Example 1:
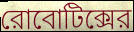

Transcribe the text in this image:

রোবোটিক্সের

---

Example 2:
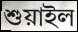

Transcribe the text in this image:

শুয়াইল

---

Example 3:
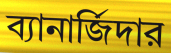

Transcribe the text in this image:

ব্যানার্জিদার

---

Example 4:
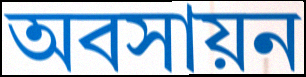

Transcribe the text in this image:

অবসায়ন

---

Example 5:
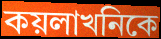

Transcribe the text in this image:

কয়লাখনিকে